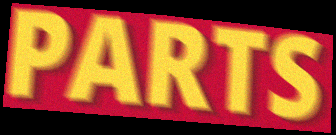
PARTS